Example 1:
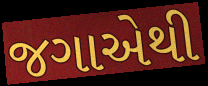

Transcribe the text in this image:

જગાએથી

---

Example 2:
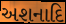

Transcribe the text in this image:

અશનાદિ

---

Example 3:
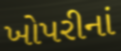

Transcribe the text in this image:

ખોપરીનાં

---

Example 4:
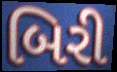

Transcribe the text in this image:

બિરી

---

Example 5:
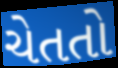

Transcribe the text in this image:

ચેતતો